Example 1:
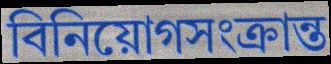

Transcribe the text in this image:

বিনিয়োগসংক্রান্ত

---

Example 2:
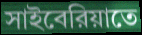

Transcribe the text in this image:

সাইবেরিয়াতে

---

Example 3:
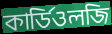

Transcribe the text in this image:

কার্ডিওলজি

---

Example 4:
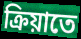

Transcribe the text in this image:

ক্রিয়াতে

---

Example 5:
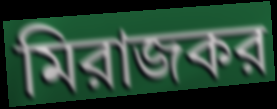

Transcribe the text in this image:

মিরাজকর